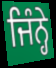
ਜਿੰਨ੍ਹੇ